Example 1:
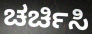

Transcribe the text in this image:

ಚರ್ಚಿಸಿ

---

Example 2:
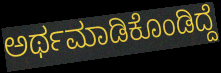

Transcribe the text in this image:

ಅರ್ಥಮಾಡಿಕೊಂಡಿದ್ದೆ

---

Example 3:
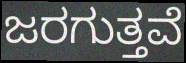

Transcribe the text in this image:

ಜರಗುತ್ತವೆ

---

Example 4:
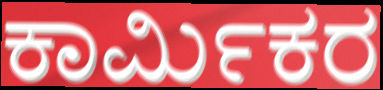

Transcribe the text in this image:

ಕಾರ್ಮಿಕರ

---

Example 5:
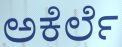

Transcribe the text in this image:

ಅಕೆರ್ಲೆ